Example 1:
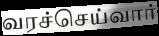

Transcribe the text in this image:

வரச்செய்வார்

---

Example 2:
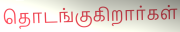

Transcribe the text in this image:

தொடங்குகிறார்கள்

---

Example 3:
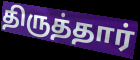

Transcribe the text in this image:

திருத்தார்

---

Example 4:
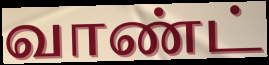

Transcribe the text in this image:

வாண்ட்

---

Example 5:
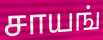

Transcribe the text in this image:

சாயங்